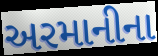
અરમાનીના